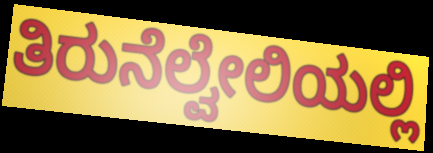
ತಿರುನೆಲ್ವೇಲಿಯಲ್ಲಿ